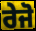
ਰੇਜੋ